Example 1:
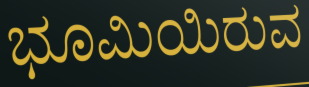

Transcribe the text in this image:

ಭೂಮಿಯಿರುವ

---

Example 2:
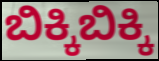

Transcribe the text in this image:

ಬಿಕ್ಕಿಬಿಕ್ಕಿ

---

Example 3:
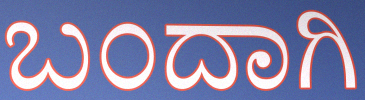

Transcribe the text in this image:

ಬಂದಾಗಿ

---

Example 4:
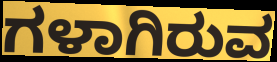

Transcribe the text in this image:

ಗಳಾಗಿರುವ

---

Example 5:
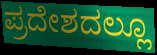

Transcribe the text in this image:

ಪ್ರದೇಶದಲ್ಲೂ